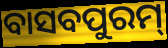
ବାସବପୁରମ୍